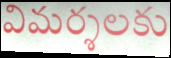
విమర్శలకు